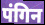
पंगिन